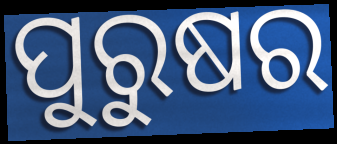
ପୁରୁଷର